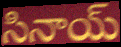
సినాయ్